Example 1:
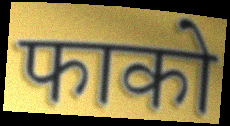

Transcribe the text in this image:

फाको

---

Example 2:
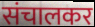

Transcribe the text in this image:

संचालकर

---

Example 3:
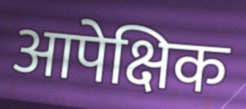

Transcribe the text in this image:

आपेक्षिक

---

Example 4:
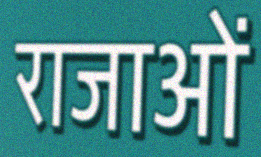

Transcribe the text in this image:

राजाओं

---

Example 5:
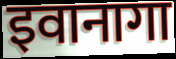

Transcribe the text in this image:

इवानागा